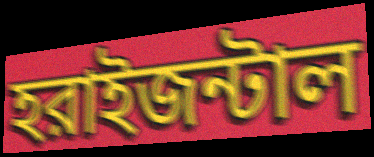
হরাইজন্টাল